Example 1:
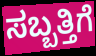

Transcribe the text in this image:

ಸಬ್ಬತ್ತಿಗೆ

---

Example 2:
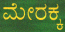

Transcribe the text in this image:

ಮೇರಕ್ಕ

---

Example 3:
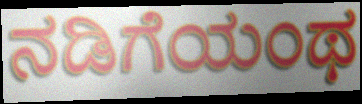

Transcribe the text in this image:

ನಡಿಗೆಯಂಥ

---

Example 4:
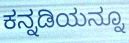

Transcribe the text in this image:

ಕನ್ನಡಿಯನ್ನೂ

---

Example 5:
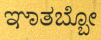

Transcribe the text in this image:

ಞಾತಬ್ಬೋ